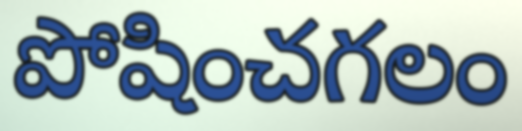
పోషించగలం